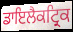
ਡਾਇਲੈਕਟ੍ਰਿਕ